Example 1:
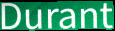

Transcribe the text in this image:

Durant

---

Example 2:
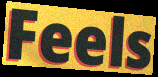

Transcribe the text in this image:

Feels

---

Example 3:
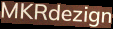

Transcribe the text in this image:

MKRdezign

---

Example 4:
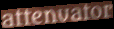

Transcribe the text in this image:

attenuator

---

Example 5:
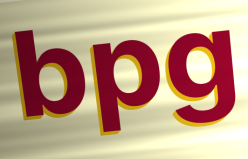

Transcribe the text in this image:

bpg